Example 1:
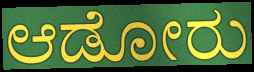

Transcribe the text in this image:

ಆಡೋರು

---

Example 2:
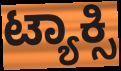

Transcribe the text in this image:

ಟ್ಯಾಕ್ಸಿ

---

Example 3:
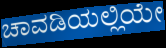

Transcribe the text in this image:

ಚಾವಡಿಯಲ್ಲಿಯೇ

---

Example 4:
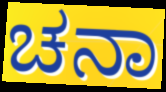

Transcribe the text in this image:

ಚನಾ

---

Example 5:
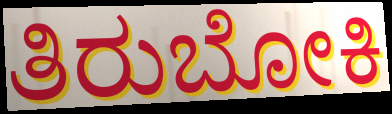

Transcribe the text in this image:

ತಿರುಬೋಕಿ